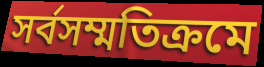
সর্বসম্মতিক্রমে